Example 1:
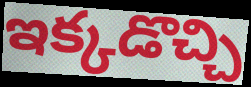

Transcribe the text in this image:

ఇక్కడొచ్చి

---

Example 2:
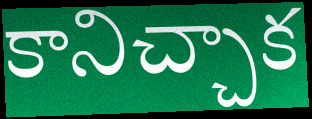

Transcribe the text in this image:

కానిచ్చాక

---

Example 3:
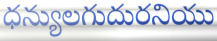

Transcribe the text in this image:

ధన్యులగుదురనియు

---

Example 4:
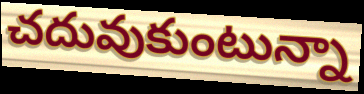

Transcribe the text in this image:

చదువుకుంటున్నా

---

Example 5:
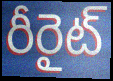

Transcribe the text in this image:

రీరైట్